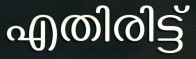
എതിരിട്ട്